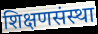
शिक्षणसंस्था